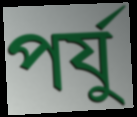
পর্যু